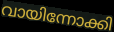
വായിന്നോക്കി